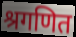
श्रगणित